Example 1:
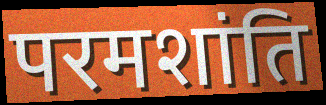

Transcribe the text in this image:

परमशांति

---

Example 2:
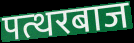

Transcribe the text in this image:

पत्थरबाज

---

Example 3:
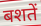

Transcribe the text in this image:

बशतें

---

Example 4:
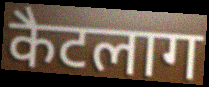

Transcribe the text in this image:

कैटलाग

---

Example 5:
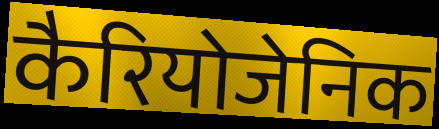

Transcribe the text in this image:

कैरियोजेनिक